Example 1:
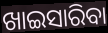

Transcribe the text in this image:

ଖାଇସାରିବା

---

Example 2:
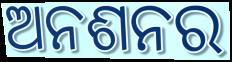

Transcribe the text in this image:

ଅନଶନର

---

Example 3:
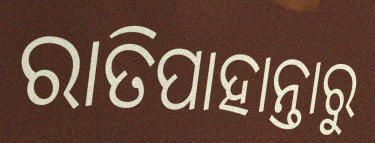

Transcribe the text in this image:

ରାତିପାହାନ୍ତାରୁ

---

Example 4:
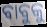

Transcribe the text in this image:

ବାବୁକୁ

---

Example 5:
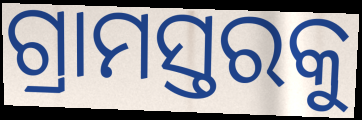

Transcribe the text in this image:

ଗ୍ରାମସ୍ତରକୁ